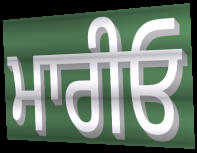
ਮਾਰੀਓ